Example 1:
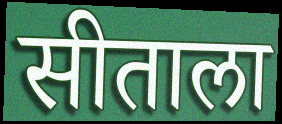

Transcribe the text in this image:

सीताला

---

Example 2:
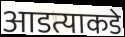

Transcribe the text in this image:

आडत्याकडे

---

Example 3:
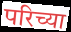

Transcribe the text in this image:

परिच्या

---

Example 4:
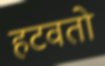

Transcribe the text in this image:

हटवतो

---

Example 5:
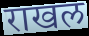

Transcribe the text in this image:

राखल